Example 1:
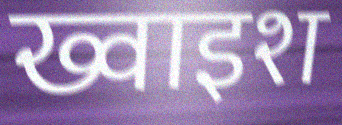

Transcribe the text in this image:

ख्वाइश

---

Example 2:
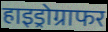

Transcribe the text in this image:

हाइड्रोग्राफर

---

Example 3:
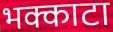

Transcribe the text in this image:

भक्काटा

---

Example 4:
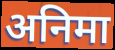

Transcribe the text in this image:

अनिमा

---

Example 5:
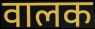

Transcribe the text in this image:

वालक